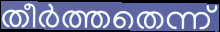
തീർത്തതെന്ന്